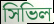
সিভিল